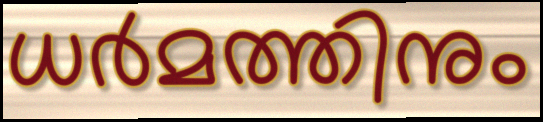
ധർമത്തിനും